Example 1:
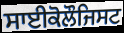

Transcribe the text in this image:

ਸਾਈਕੋਲੌਜਿਸਟ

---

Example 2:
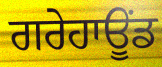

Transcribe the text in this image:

ਗਰੇਹਾਊਂਡ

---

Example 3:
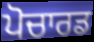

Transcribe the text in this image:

ਪੋਚਾਰਡ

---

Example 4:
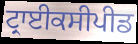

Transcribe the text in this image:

ਟ੍ਰਾਈਕਸੀਪੀਡ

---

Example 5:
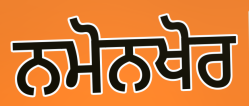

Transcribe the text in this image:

ਨਮੋਨਖੋਰ